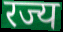
रज्य